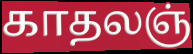
காதலஞ்